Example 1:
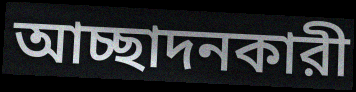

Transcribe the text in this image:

আচ্ছাদনকারী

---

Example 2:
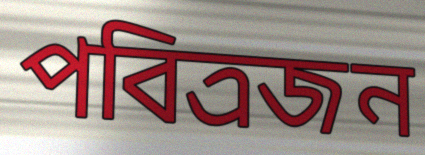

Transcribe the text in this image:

পবিত্রজন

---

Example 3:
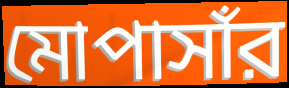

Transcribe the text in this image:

মোপাসাঁর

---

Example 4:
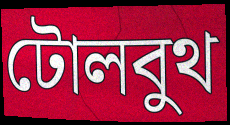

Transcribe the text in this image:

টোলবুথ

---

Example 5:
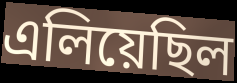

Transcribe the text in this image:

এলিয়েছিল